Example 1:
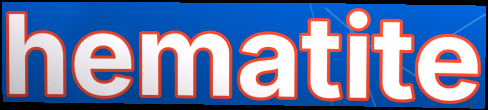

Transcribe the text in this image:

hematite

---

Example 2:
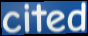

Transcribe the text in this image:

cited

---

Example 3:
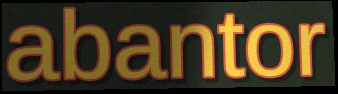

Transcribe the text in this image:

abantor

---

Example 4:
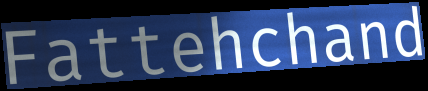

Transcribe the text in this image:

Fattehchand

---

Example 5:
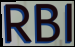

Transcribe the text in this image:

RBI